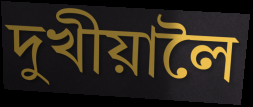
দুখীয়ালৈ